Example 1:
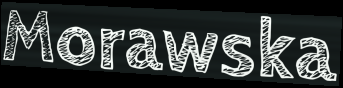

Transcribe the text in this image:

Morawska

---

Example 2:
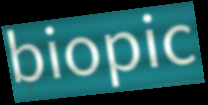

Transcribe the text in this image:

biopic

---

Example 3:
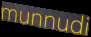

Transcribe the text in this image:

munnudi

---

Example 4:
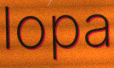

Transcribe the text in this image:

lopa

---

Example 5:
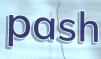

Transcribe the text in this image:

pash